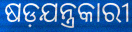
ଷଡ଼ଯନ୍ତ୍ରକାରୀ